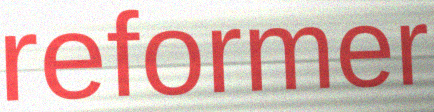
reformer